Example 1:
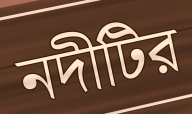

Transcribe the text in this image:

নদীটির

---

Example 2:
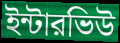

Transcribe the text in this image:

ইন্টারভিউ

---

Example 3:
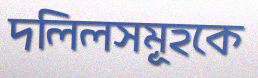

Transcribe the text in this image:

দলিলসমূহকে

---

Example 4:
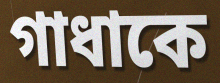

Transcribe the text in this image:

গাধাকে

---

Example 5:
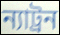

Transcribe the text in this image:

ন্যাট্রন